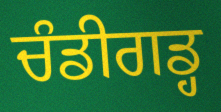
ਚੰਡੀਗਡ੍ਹ